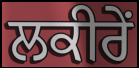
ਲਕੀਰੇਂ